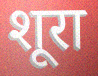
शूरा